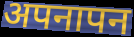
अपनापन